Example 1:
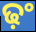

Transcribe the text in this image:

ଢ଼ଂ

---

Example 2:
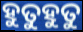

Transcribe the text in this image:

ହୁତୁହୁତୁ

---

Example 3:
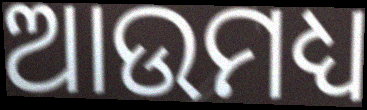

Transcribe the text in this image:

ଆଉମଧ୍ୟ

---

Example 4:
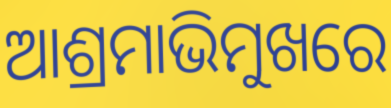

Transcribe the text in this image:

ଆଶ୍ରମାଭିମୁଖରେ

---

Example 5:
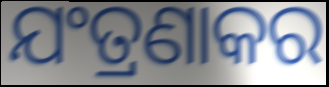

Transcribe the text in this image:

ଯଂତ୍ରଣାକର